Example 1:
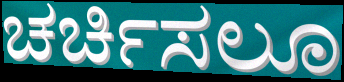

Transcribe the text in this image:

ಚರ್ಚಿಸಲೂ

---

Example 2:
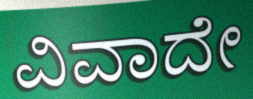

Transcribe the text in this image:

ವಿವಾದೇ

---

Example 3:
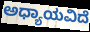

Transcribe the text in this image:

ಅಧ್ಯಾಯವಿದೆ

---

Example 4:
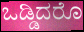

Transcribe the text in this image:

ಒಡ್ಡಿದರೊ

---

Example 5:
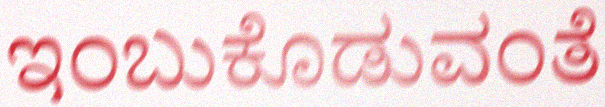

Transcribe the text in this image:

ಇಂಬುಕೊಡುವಂತೆ